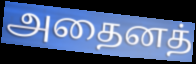
அதைனத்